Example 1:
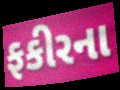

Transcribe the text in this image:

ફકીરના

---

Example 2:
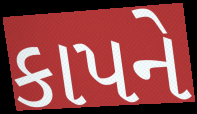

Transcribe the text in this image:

કાપને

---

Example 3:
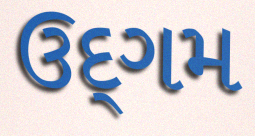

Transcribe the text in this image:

ઉદ્‌ગમ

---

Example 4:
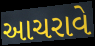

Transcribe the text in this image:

આચરાવે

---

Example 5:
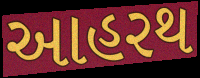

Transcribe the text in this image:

આહરથ